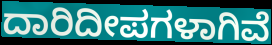
ದಾರಿದೀಪಗಳಾಗಿವೆ